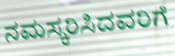
ನಮಸ್ಕರಿಸಿದವರಿಗೆ